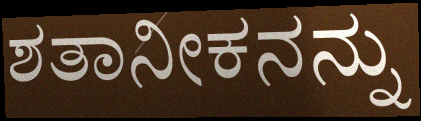
ಶತಾನೀಕನನ್ನು